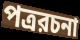
পত্ররচনা